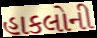
હાકલોની